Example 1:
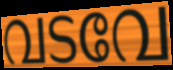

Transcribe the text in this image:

വടവേ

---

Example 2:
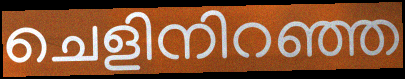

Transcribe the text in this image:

ചെളിനിറഞ്ഞ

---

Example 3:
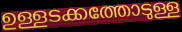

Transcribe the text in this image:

ഉള്ളടക്കത്തോടുള്ള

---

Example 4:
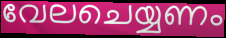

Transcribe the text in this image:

വേലചെയ്യണം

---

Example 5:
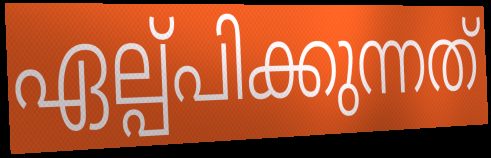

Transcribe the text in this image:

ഏല്പ്പിക്കുന്നത്